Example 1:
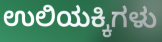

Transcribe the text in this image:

ಉಲಿಯಕ್ಕಿಗಳು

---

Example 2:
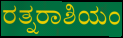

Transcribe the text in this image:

ರತ್ನರಾಶಿಯಂ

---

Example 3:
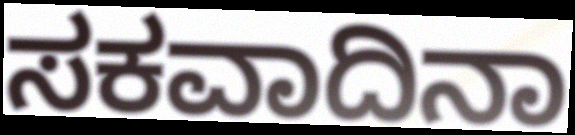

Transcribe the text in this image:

ಸಕವಾದಿನಾ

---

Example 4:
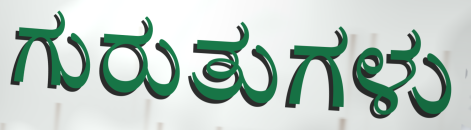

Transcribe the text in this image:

ಗುರುತುಗಳು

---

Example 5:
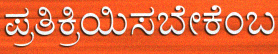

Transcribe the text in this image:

ಪ್ರತಿಕ್ರಿಯಿಸಬೇಕೆಂಬ